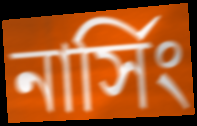
নার্সিং